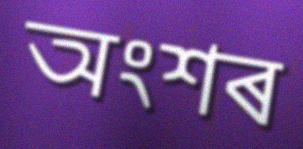
অংশৰ